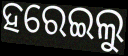
ହରେଇଲୁ